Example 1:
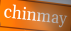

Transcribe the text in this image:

chinmay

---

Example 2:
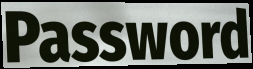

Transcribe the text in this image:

Password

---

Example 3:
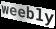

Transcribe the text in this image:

weebly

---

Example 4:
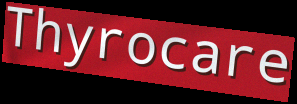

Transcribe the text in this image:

Thyrocare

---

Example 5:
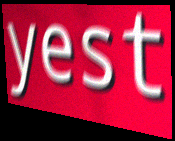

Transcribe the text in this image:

yest